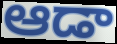
ఆడా